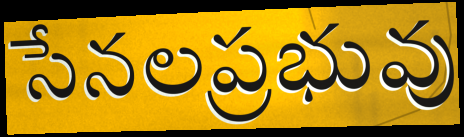
సేనలప్రభువు